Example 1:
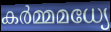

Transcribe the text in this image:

കർമ്മമധ്യേ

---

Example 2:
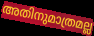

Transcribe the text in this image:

അതിനുമാത്രമല്ല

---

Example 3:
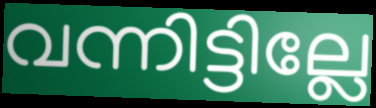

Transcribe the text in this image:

വന്നിട്ടില്ലേ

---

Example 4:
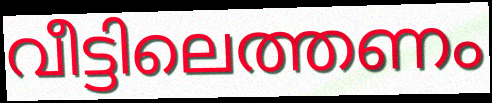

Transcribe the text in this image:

വീട്ടിലെത്തണം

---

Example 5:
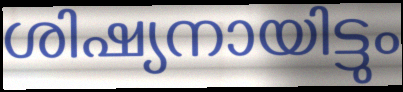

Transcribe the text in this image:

ശിഷ്യനായിട്ടും